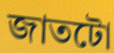
জাতটো